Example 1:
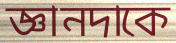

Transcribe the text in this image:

জ্ঞানদাকে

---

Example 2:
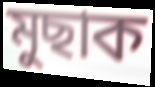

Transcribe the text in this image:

মুছাক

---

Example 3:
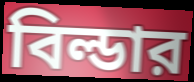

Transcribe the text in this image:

বিল্ডার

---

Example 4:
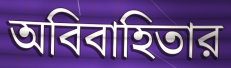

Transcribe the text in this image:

অবিবাহিতার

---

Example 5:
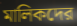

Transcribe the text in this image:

মালিকদের